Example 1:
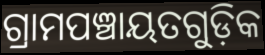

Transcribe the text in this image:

ଗ୍ରାମପଞ୍ଚାୟତଗୁଡ଼ିକ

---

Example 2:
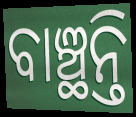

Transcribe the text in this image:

ବାଞ୍ଛନ୍ତି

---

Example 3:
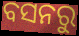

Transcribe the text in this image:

ବସନରୁ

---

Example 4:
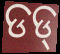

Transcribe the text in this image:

ଡଡ୍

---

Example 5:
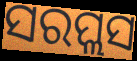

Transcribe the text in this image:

ସରପ୍ଲସ